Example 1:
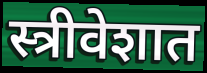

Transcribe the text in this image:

स्त्रीवेशात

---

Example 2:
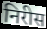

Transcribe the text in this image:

निरीस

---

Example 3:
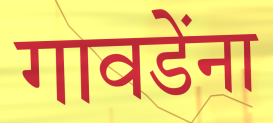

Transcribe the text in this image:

गावडेंना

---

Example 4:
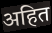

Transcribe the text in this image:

अहित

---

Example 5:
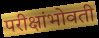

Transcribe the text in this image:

परीक्षांभोवती